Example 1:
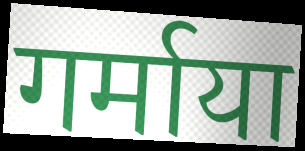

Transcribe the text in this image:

गर्माया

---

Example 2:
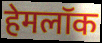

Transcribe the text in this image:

हेमलॉक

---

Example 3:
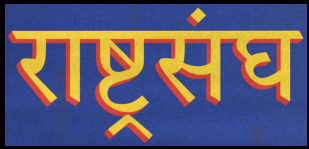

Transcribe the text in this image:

राष्ट्रसंघ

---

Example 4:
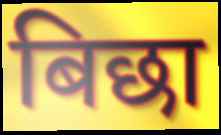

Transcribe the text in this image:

बिछा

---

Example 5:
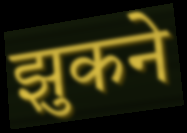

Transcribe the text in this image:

झुकने